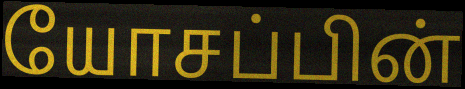
யோசப்பின்